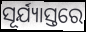
ସୂର୍ଯ୍ୟାସ୍ତରେ